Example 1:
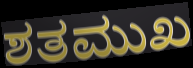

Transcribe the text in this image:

ಶತಮುಖ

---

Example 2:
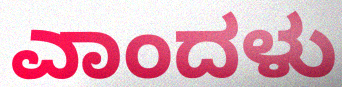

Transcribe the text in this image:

ಎಾಂದಳು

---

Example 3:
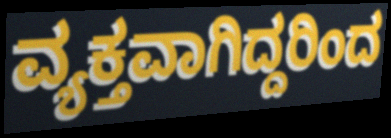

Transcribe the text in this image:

ವ್ಯಕ್ತವಾಗಿದ್ದರಿಂದ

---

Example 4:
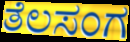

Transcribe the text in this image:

ತೆಲಸಂಗ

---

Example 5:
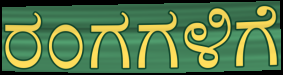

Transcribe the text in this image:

ರಂಗಗಳಿಗೆ